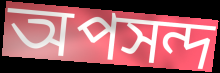
অপসন্দ